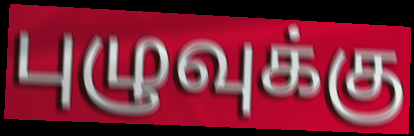
புழுவுக்கு